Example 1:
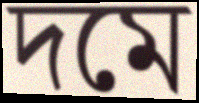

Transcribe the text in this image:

দমে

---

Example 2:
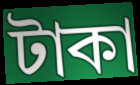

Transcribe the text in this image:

টাকা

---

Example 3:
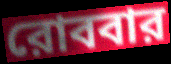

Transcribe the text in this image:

রোববার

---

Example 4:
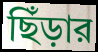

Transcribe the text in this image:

ছিঁড়ার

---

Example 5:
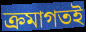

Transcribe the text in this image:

ক্রমাগতই